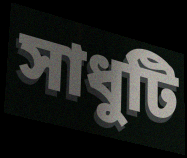
সাধুটি